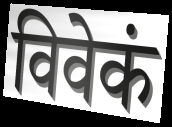
विवेकं